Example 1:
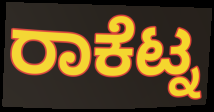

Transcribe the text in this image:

ರಾಕೆಟ್ನ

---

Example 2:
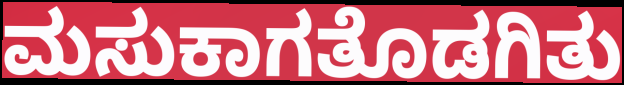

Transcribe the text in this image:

ಮಸುಕಾಗತೊಡಗಿತು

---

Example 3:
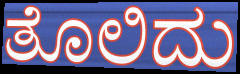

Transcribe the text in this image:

ತೊಲಿದು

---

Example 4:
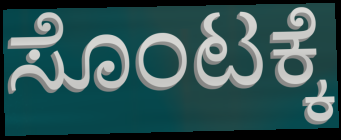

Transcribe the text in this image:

ಸೊಂಟಕ್ಕೆ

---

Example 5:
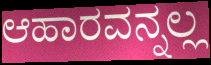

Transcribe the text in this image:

ಆಹಾರವನ್ನಲ್ಲ